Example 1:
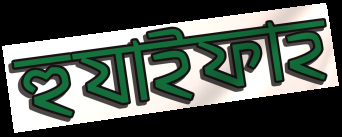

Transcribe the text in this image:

হুযাইফাহ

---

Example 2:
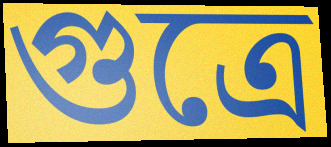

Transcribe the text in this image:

গুত্রে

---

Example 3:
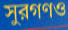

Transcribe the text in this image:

সুরগণও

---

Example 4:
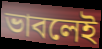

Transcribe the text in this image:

ভাবলেই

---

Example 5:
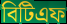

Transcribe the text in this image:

বিটিএফ